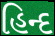
હિન્દ